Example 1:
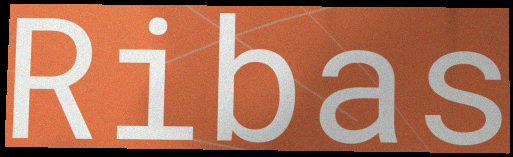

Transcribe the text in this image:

Ribas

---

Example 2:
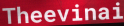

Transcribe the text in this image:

Theevinai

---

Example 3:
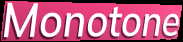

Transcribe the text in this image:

Monotone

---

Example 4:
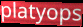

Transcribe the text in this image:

platyops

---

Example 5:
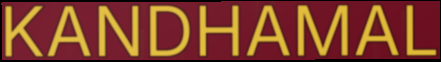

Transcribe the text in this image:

KANDHAMAL